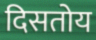
दिसतोय